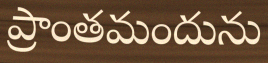
ప్రాంతమందును